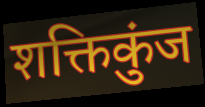
शक्तिकुंज